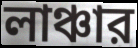
লাঞ্চার